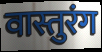
वास्तुरंग